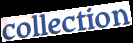
collection